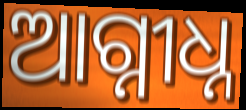
ଆଗ୍ନୀଧ୍ନ